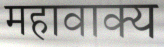
महावाक्य